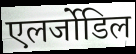
एलर्जोडिल